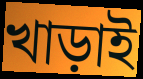
খাড়াই